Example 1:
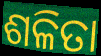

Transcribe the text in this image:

ଶଳିତା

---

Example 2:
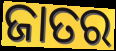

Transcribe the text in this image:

ଜାତର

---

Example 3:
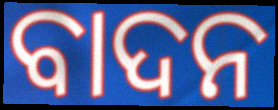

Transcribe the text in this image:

ବାଦନ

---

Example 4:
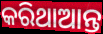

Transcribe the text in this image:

କରିଥାଆନ୍ତ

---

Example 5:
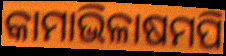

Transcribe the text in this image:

କାମାଭିଳାଷମପି